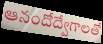
ఆనందోద్వేగాలతో